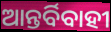
ଆନ୍ତର୍ବିବାହୀ